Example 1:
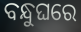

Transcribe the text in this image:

ବନ୍ଧୁଘରେ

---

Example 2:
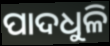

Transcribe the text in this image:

ପାଦଧୁଳି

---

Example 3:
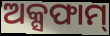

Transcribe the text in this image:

ଅକ୍ସଫାମ୍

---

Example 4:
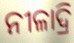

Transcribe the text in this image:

ନୀଳାଦ୍ରି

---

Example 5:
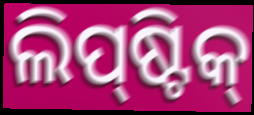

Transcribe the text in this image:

ଲିପ୍‍ଷ୍ଟିକ୍